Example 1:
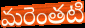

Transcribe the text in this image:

మరెంతటి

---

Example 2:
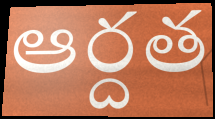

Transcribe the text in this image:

ఆర్దత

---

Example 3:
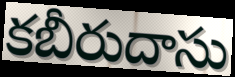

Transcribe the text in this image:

కబీరుదాసు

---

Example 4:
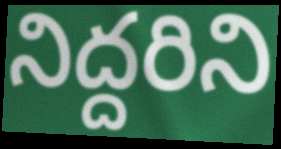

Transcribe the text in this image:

నిద్దరిని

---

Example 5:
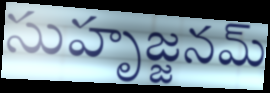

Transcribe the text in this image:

సుహృజ్జనమ్